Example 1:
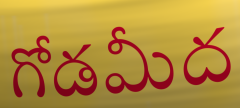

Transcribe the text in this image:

గోడమీద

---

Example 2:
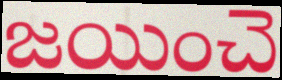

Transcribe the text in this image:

జయించె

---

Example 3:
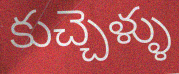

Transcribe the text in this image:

కుచ్చెళ్ళు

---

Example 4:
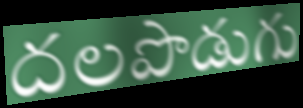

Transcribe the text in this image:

దలపొడుగు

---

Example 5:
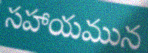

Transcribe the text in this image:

సహాయమున